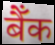
बैँक